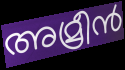
അമ്രീൻ